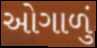
ઓગાળું